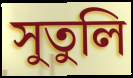
সুতুলি